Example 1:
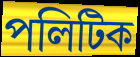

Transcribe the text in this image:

পলিটিক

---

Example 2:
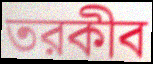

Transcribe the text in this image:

তরকীব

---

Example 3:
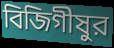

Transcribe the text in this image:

বিজিগীষুর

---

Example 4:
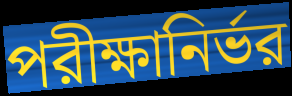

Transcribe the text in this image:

পরীক্ষানির্ভর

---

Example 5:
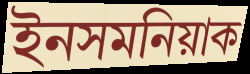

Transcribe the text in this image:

ইনসমনিয়াক